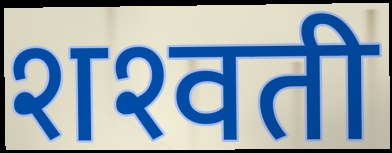
शश्वती